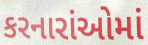
કરનારાંઓમાં